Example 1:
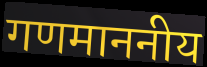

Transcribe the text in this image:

गणमाननीय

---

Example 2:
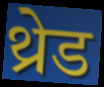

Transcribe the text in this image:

थ्रेड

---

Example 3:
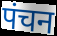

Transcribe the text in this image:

पंचन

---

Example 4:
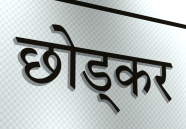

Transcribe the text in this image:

छोड्कर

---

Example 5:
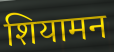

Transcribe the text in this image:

शियामन